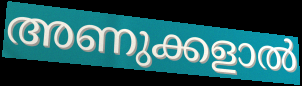
അണുക്കളാൽ